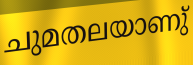
ചുമതലയാണു്